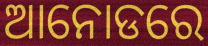
ଆନୋଡରେ